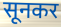
सूनकर